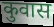
कुवास